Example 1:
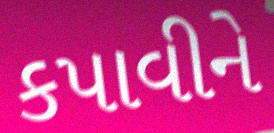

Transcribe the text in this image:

કપાવીને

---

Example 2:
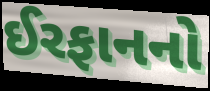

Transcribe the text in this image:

ઈરફાનનો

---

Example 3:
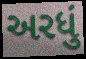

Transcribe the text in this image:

અરધું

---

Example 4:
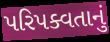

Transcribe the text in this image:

પરિપક્વતાનું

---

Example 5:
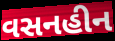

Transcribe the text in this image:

વસનહીન